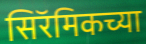
सिरॅमिकच्या